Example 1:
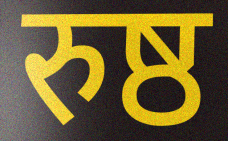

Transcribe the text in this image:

रुष्ठ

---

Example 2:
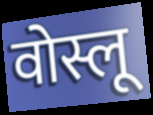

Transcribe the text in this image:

वोस्लू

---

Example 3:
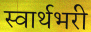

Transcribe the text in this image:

स्वार्थभरी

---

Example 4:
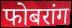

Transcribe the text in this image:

फोबरांग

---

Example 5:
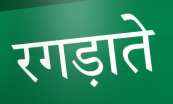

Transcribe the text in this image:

रगड़ाते